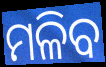
ମଳିବ